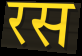
रस